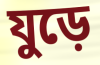
যুড়ে